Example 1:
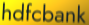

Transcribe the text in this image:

hdfcbank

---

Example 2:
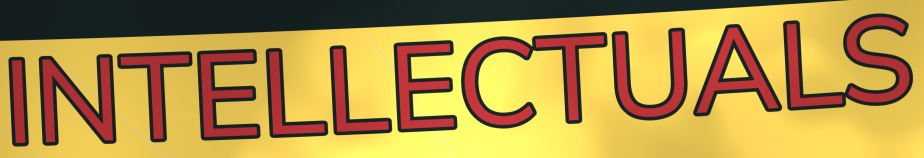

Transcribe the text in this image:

INTELLECTUALS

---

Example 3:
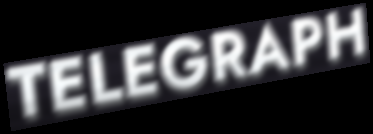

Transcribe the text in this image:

TELEGRAPH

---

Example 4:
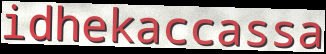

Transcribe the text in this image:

idhekaccassa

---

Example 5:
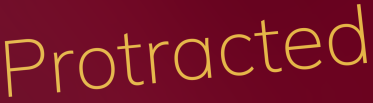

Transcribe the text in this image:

Protracted